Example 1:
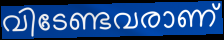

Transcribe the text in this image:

വിടേണ്ടവരാണ്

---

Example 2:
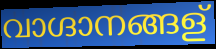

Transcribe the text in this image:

വാഗ്ദാനങ്ങള്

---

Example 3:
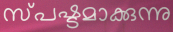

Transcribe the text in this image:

സ്പഷ്ടമാക്കുന്നു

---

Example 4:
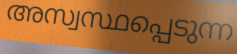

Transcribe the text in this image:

അസ്വസ്ഥപ്പെടുന്ന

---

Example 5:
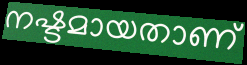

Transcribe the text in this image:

നഷ്ടമായതാണ്